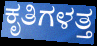
ಕೃತಿಗಳತ್ತ